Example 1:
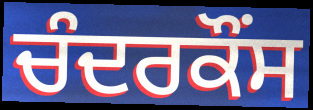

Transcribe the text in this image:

ਚੰਦਰਕੌਂਸ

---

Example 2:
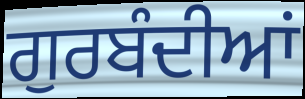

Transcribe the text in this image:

ਗੁਰਬੰਦੀਆਂ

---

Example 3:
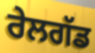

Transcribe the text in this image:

ਰੇਲਗੱਡ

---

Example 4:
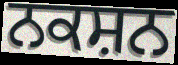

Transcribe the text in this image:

ਨਕਸ਼ਨ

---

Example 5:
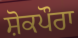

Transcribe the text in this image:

ਸ਼ੋਕਪੌਰਾ